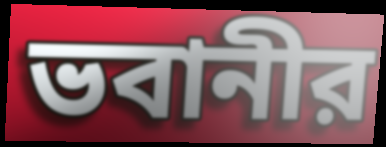
ভবানীর